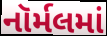
નૉર્મલમાં